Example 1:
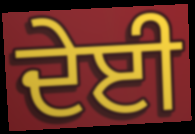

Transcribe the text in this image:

ਦੇਈ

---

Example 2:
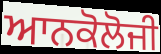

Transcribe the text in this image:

ਆਨਕੋਲੋਜੀ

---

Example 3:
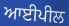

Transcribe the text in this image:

ਆਈਪੀਲ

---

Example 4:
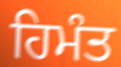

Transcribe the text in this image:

ਹਿਮੰਤ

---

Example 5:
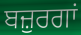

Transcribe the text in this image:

ਬਜ਼ੁਰਗਾਂ